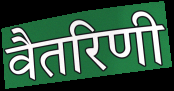
वैतरिणी